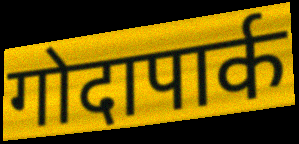
गोदापार्क